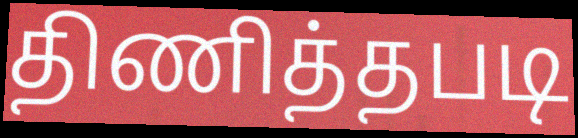
திணித்தபடி